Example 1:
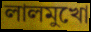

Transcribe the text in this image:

লালমুখো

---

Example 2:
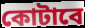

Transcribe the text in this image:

কোটাবে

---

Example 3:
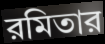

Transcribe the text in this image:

রমিতার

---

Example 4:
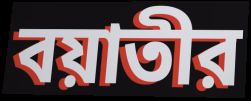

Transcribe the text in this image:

বয়াতীর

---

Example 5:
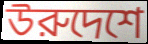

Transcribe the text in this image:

উরুদেশে